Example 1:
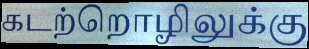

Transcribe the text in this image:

கடற்றொழிலுக்கு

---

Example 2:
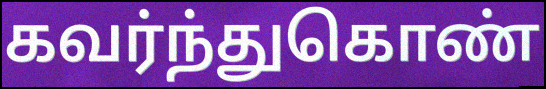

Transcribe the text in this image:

கவர்ந்துகொண்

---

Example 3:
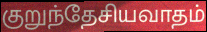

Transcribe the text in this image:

குறுந்தேசியவாதம்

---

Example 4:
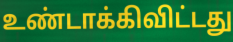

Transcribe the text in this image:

உண்டாக்கிவிட்டது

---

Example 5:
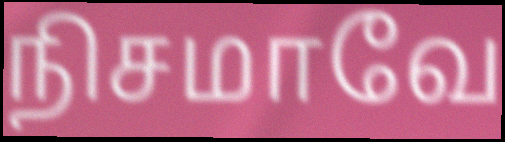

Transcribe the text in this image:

நிசமாவே